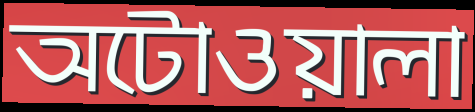
অটোওয়ালা